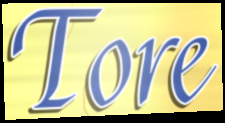
Tore